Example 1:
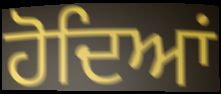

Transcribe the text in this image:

ਹੋਦਿਆਂ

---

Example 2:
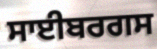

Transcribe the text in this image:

ਸਾਈਬਰਗਸ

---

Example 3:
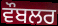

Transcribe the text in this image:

ਵੌਬਲਰ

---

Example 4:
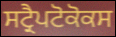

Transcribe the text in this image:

ਸਟ੍ਰੈਪਟੋਕੋਕਸ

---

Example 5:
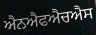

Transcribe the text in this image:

ਐਨਐਫਐਚਐਸ